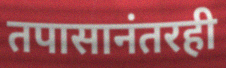
तपासानंतरही